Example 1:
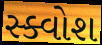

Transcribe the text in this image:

સ્ક્વોશ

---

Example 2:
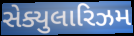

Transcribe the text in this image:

સેક્યુલારિઝમ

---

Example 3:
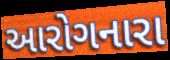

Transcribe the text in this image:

આરોગનારા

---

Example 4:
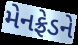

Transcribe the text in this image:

મેનફ્રેડને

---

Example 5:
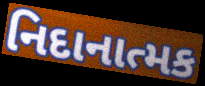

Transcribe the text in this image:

નિદાનાત્મક